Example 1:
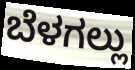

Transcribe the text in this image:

ಬೆಳಗಲ್ಲು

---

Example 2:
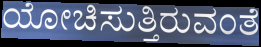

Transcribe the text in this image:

ಯೋಚಿಸುತ್ತಿರುವಂತೆ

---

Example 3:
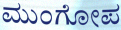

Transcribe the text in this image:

ಮುಂಗೋಪ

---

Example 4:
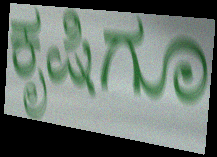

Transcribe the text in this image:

ಕೃಷಿಗೂ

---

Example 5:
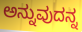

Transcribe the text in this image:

ಅನ್ನುವುದನ್ನ